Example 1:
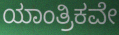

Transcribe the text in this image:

ಯಾಂತ್ರಿಕವೇ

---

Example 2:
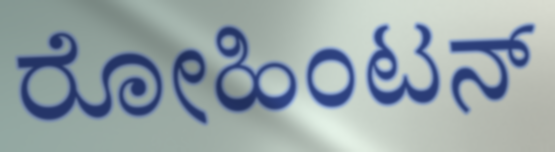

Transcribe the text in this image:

ರೋಹಿಂಟನ್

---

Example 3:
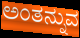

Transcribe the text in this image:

ಅಂತನ್ನುವ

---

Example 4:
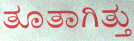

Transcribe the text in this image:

ತೂತಾಗಿತ್ತು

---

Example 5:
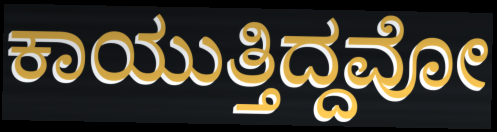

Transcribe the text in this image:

ಕಾಯುತ್ತಿದ್ದವೋ